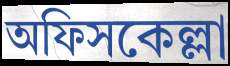
অফিসকেল্লা